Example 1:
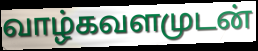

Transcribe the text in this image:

வாழ்கவளமுடன்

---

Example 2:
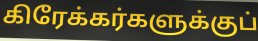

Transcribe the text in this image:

கிரேக்கர்களுக்குப்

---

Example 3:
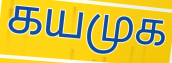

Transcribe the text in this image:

கயமுக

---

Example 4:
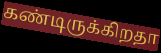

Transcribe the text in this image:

கண்டிருக்கிறதா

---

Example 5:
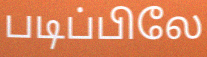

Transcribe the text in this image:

படிப்பிலே